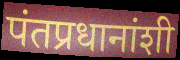
पंतप्रधानांशी